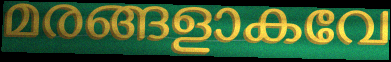
മരങ്ങളാകവേ